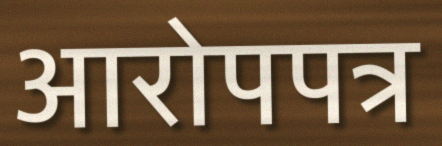
आरोपपत्र